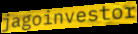
jagoinvestor